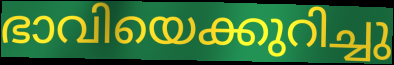
ഭാവിയെക്കുറിച്ചു